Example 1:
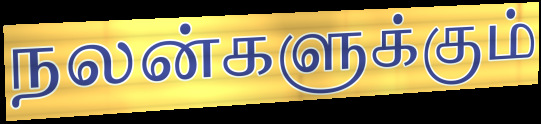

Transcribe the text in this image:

நலன்களுக்கும்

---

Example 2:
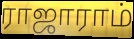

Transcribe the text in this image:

ராஜாராம்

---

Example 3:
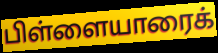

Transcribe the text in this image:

பிள்ளையாரைக்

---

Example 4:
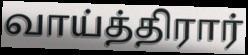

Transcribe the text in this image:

வாய்த்திரார்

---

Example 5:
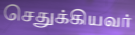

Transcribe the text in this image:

செதுக்கியவர்